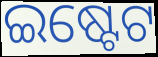
ଇଷ୍ଟେଟ